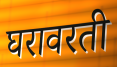
घरावरती